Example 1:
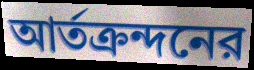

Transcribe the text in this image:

আর্তক্রন্দনের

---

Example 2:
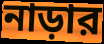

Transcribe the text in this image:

নাড়ার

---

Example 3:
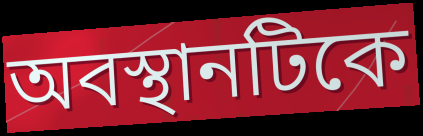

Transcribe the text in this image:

অবস্থানটিকে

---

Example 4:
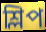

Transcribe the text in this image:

শ্লিপ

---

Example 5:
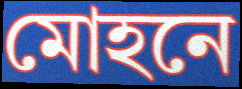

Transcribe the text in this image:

মোহনে